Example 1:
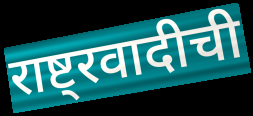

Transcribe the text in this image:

राष्ट्रवादीची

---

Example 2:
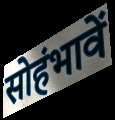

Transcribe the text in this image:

सोहंभावें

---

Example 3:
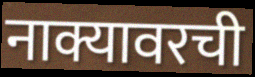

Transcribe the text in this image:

नाक्यावरची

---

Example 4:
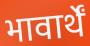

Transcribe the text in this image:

भावार्थें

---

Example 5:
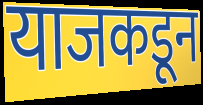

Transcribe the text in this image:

याजकडून